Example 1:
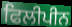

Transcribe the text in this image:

ਫਿਲੀਪੀਨ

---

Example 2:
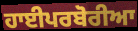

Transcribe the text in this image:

ਹਾਈਪਰਬੋਰੀਆ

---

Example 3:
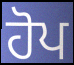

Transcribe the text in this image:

ਹੋਪ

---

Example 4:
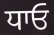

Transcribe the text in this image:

ਧਾਓ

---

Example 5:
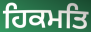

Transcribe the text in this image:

ਹਿਕਮਤਿ